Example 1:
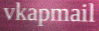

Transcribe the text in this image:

vkapmail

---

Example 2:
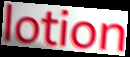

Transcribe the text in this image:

lotion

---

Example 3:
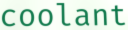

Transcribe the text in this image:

coolant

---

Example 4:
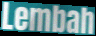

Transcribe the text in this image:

Lembah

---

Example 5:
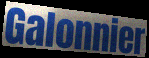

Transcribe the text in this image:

Galonnier